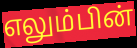
எலும்பின்